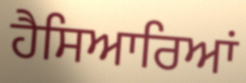
ਹੈਸਿਆਰਿਆਂ